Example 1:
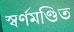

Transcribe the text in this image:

স্বর্ণমণ্ডিত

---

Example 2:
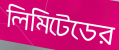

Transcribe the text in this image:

লিমিটেডের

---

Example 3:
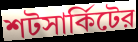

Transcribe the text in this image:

শটসার্কিটের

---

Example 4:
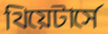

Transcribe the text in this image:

থিয়েটার্সে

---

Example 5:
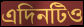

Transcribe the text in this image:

এদিনটিও